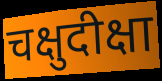
चक्षुदीक्षा